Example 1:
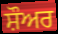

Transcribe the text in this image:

ਸ਼ੌਅਰ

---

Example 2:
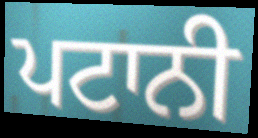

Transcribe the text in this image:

ਪਟਾਨੀ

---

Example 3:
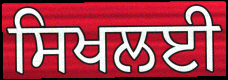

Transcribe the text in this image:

ਸਿਖਲਈ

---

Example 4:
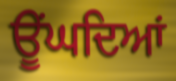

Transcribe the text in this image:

ਊਂਘਦਿਆਂ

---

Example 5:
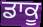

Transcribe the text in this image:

ਡਾਕੂ